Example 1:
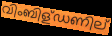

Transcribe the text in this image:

വിംബിള്ഡണില്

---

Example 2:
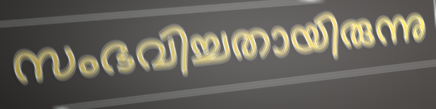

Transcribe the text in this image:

സംഭവിച്ചതായിരുന്നു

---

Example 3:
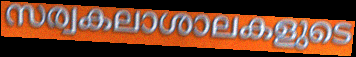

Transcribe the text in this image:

സര്വകലാശാലകളുടെ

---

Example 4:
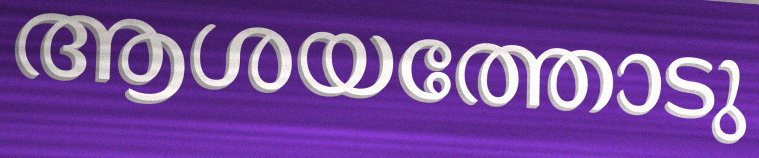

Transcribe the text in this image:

ആശയത്തോടു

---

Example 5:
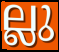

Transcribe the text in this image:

ല്ലു